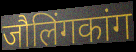
जौलिंगकांग